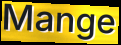
Mange